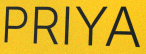
PRIYA